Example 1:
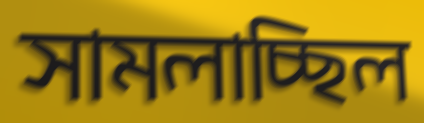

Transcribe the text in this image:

সামলাচ্ছিল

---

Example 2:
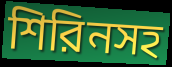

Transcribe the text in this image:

শিরিনসহ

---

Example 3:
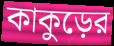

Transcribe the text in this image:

কাকুড়ের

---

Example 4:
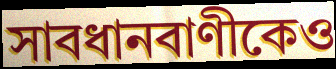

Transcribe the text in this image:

সাবধানবাণীকেও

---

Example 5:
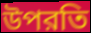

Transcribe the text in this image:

উপরতি